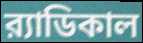
র‍্যাডিকাল